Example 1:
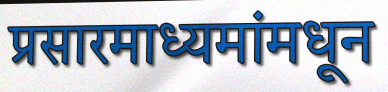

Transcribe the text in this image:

प्रसारमाध्यमांमधून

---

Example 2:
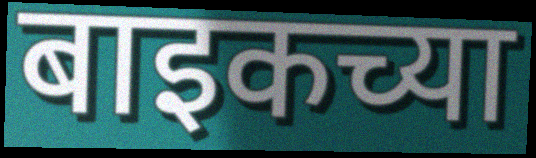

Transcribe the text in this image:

बाइकच्या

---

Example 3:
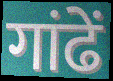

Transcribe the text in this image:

गांढें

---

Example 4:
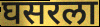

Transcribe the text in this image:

घसरला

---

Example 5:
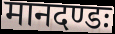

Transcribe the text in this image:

मानदण्डः